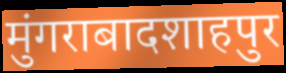
मुंगराबादशाहपुर